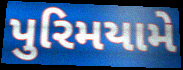
પુરિમયામે